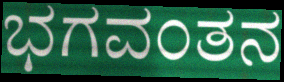
ಭಗವಂತನ